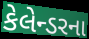
કેલેન્ડરના